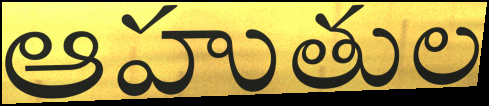
ఆహుతుల